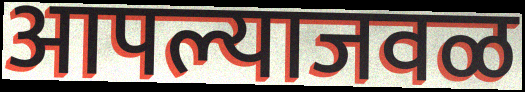
आपल्याजवळ